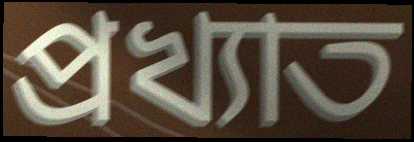
প্ৰখ্যাত